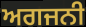
ਅਗਜਨੀ